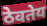
ठेवतेय